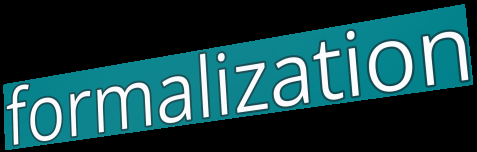
formalization